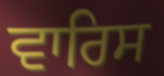
ਵਾਰਿਸ